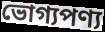
ভোগ্যপণ্য